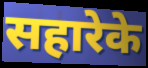
सहारेके